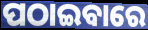
ପଠାଇବାରେ